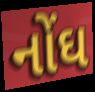
નોંઘ